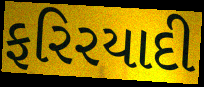
ફરિરયાદી